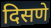
दिसणे